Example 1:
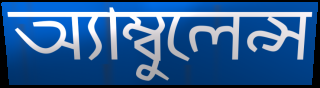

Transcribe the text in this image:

অ্যাম্বুলেন্স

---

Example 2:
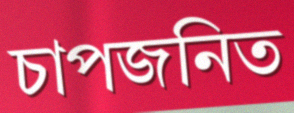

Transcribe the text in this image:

চাপজনিত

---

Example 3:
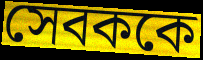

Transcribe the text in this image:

সেবককে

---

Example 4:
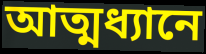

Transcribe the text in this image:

আত্মধ্যানে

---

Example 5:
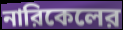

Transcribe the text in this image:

নারিকেলের